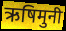
ऋषिमुनी